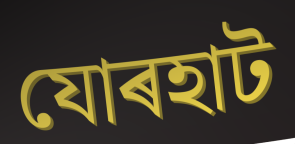
যোৰহাট